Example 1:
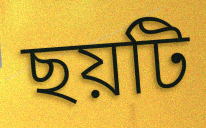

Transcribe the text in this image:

ছয়টি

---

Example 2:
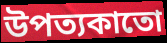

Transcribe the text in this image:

উপত্যকাতো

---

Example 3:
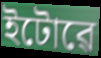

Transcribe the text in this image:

ইটোৱে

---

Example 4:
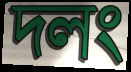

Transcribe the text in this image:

দলং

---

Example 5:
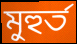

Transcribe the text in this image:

মুহুৰ্ত